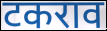
टकराव